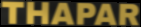
THAPAR